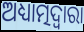
ଅଧ୍ୟାତ୍ମଦ୍ୱାରା